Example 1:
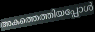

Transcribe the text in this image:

അകത്തെത്തിയപ്പോൾ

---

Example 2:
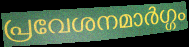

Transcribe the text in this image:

പ്രവേശനമാർഗ്ഗം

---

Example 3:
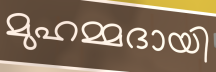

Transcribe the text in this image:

മുഹമ്മദായി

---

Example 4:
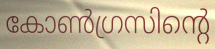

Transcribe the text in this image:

കോൺഗ്രസിന്റെ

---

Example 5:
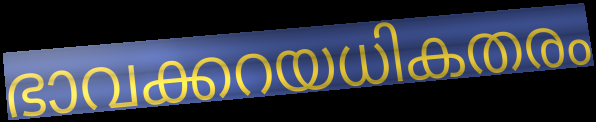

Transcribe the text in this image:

ഭാവക്കറയധികതരം